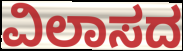
ವಿಲಾಸದ